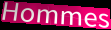
Hommes